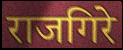
राजगिरे